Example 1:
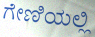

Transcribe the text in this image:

ಗೇಣಿಯಲ್ಲಿ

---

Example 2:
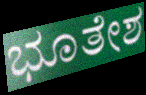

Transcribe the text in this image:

ಭೂತೇಶ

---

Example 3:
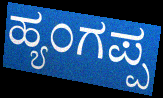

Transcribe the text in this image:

ಹ್ಯಂಗಪ್ಪ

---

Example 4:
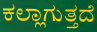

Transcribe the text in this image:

ಕಲ್ಲಾಗುತ್ತದೆ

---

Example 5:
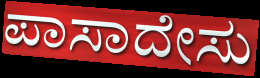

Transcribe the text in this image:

ಪಾಸಾದೇಸು